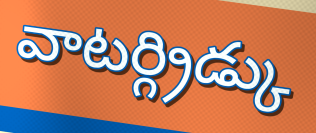
వాటర్గ్రిడ్కు